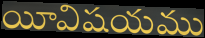
యీవిషయము